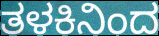
ತಳಕಿನಿಂದ